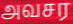
அவசர